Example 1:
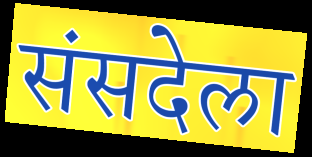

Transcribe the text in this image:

संसदेला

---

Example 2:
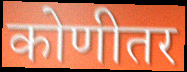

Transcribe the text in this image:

कोणीतर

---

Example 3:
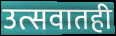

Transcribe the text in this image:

उत्सवातही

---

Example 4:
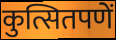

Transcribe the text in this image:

कुत्सितपणें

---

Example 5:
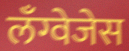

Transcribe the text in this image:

लँग्वेजेस